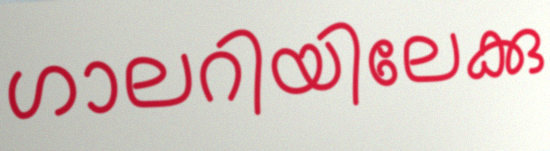
ഗാലറിയിലേക്കു